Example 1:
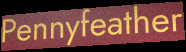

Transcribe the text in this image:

Pennyfeather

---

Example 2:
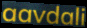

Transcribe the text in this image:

aavdali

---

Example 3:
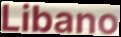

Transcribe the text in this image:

Libano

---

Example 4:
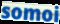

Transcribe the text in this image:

somoi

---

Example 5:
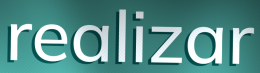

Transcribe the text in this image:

realizar